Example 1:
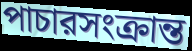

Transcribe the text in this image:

পাচারসংক্রান্ত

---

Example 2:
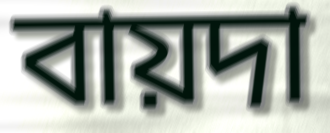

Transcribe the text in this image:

বায়দা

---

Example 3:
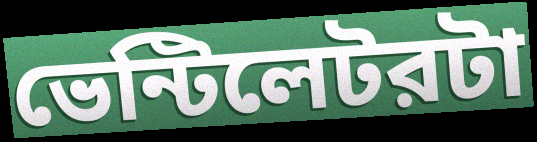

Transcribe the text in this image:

ভেন্টিলেটরটা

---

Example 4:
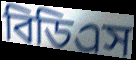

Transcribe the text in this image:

বিডিএস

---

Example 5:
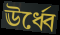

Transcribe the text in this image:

ঊর্ধ্বে